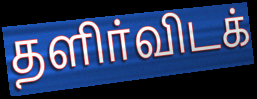
தளிர்விடக்